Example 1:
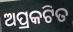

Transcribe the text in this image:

ଅପ୍ରକଟିତ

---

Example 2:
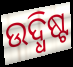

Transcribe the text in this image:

ଉଦ୍ଧିଷ୍ଟ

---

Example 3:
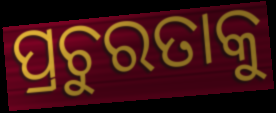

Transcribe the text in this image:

ପ୍ରଚୁରତାକୁ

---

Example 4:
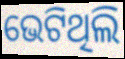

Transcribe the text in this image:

ଭେଟିଥିଲି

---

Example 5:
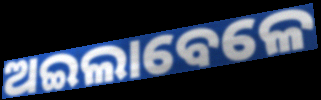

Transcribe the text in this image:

ଅଇଲାବେଳେ